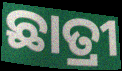
ଛାତ୍ରୀ